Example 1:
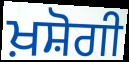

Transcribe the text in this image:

ਖ਼ਸ਼ੋਗੀ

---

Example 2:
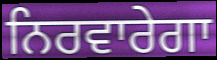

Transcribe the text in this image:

ਨਿਰਵਾਰੇਗਾ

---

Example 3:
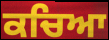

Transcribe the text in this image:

ਕਚਿਆ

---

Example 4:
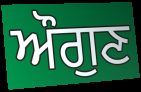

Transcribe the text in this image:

ਔਗੁਣ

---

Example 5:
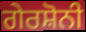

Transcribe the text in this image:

ਗੇਰਸ਼ੋਨੀ